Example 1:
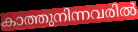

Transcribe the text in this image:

കാത്തുനിന്നവരിൽ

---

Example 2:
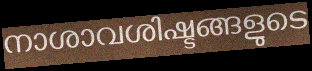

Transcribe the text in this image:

നാശാവശിഷ്ടങ്ങളുടെ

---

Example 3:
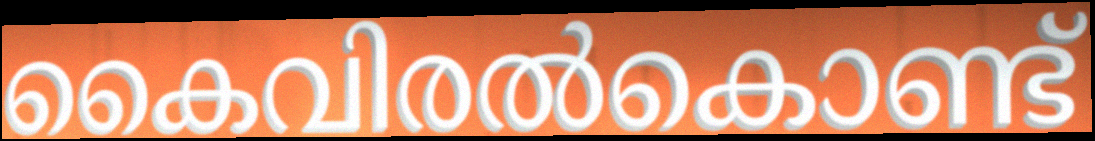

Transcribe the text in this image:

കൈവിരൽകൊണ്ട്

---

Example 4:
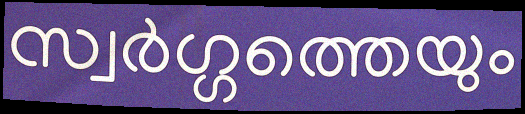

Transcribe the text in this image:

സ്വർഗ്ഗത്തെയും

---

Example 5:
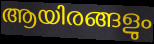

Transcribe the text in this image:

ആയിരങ്ങളും